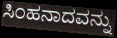
ಸಿಂಹನಾದವನ್ನು